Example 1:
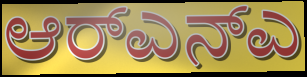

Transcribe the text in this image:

ಆರ್‌ಎನ್ಎ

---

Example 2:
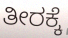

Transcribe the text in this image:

ತೀರಕ್ಕೆ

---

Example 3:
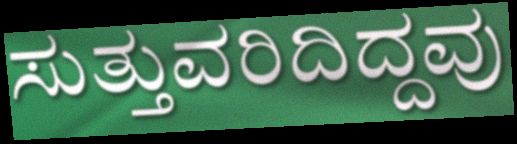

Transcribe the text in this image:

ಸುತ್ತುವರಿದಿದ್ದವು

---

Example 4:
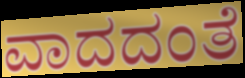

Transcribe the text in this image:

ವಾದದಂತೆ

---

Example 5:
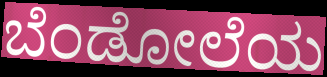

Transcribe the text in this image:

ಬೆಂಡೋಲೆಯ